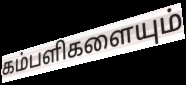
கம்பளிகளையும்